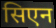
सिएन